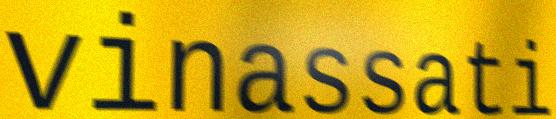
vinassati